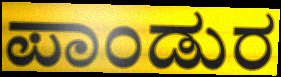
ಪಾಂಡುರ